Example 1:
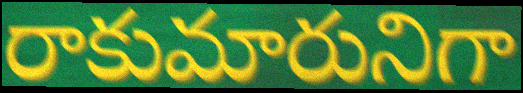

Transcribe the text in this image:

రాకుమారునిగా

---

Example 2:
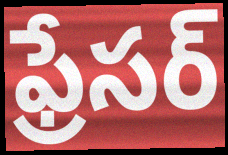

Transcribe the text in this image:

ఫ్రేసర్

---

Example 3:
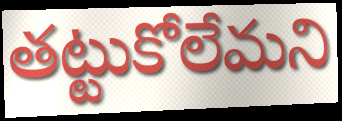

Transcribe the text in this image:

తట్టుకోలేమని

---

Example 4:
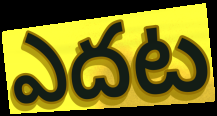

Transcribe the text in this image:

ఎదట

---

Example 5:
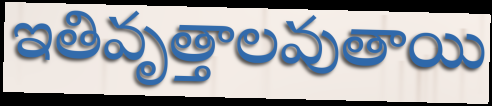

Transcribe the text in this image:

ఇతివృత్తాలవుతాయి